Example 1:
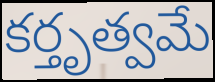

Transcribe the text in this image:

కర్తృత్వమే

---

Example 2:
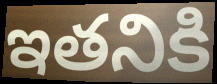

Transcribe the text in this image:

ఇతనికి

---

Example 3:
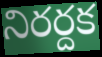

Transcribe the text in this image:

నిరర్దక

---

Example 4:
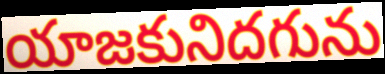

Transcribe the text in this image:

యాజకునిదగును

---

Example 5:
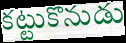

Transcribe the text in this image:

కట్టుకొనుడు